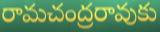
రామచంద్రరావుకు